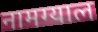
नामग्याल